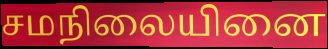
சமநிலையினை